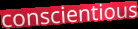
conscientious